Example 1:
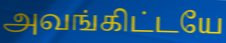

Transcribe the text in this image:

அவங்கிட்டயே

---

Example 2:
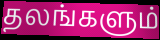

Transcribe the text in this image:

தலங்களும்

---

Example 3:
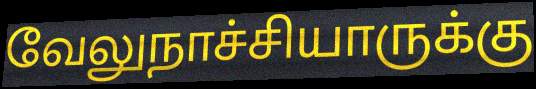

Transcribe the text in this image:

வேலுநாச்சியாருக்கு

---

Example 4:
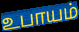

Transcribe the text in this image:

உபாயம்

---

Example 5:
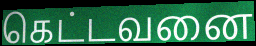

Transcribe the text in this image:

கெட்டவனை